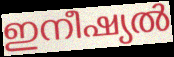
ഇനീഷ്യൽ